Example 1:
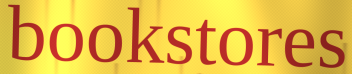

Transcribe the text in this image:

bookstores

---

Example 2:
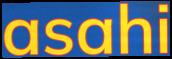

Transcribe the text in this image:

asahi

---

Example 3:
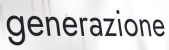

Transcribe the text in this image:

generazione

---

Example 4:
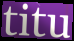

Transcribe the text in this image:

titu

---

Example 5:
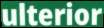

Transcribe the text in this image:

ulterior